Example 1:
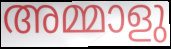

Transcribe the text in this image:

അമ്മാളു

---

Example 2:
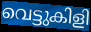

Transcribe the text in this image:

വെട്ടുകിളി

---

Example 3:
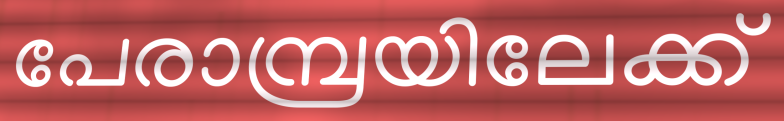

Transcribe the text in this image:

പേരാമ്പ്രയിലേക്ക്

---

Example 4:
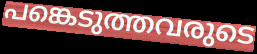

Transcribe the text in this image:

പങ്കെടുത്തവരുടെ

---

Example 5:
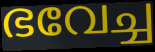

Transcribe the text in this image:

ഭവേച്ച